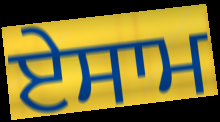
ਏਸਾਮ